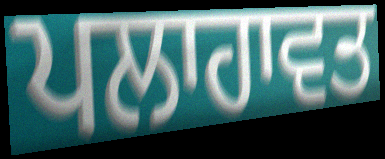
ਪਲਾਹਾਵਤ